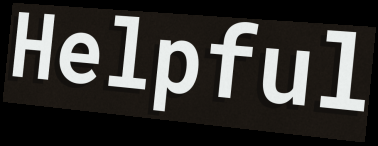
Helpful